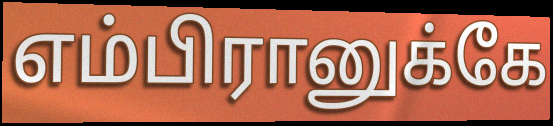
எம்பிரானுக்கே